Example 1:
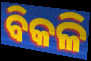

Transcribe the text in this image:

ବିକଳି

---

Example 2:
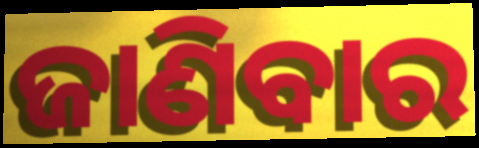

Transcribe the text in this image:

ଜାଣିବାର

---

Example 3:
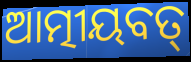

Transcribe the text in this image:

ଆତ୍ମୀୟବତ୍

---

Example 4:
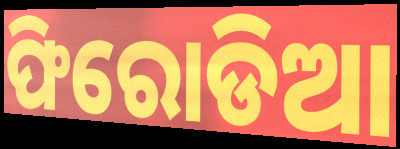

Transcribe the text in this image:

ଫିରୋଡିଆ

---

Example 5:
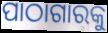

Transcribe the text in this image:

ପାଠାଗାରକୁ